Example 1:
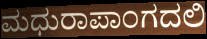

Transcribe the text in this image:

ಮಧುರಾಪಾಂಗದಲಿ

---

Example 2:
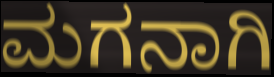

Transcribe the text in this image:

ಮಗನಾಗಿ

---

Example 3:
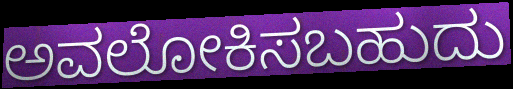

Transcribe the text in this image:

ಅವಲೋಕಿಸಬಹುದು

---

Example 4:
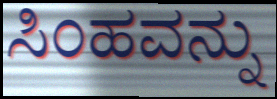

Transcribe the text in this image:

ಸಿಂಹವನ್ನು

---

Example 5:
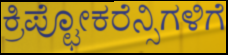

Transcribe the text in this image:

ಕ್ರಿಪ್ಟೋಕರೆನ್ಸಿಗಳಿಗೆ